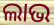
ଲାଭ